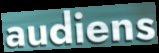
audiens